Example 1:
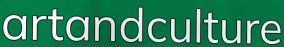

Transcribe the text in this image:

artandculture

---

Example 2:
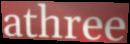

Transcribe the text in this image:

athree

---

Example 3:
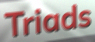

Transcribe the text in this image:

Triads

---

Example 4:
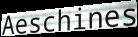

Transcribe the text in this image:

Aeschines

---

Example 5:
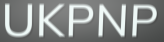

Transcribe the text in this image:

UKPNP